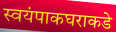
स्वयंपाकघराकडे